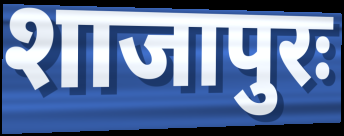
शाजापुरः